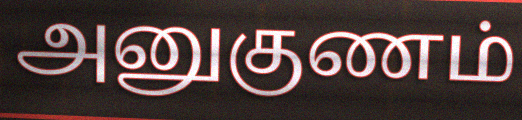
அனுகுணம்